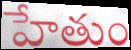
హేతుం